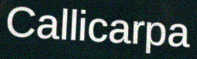
Callicarpa